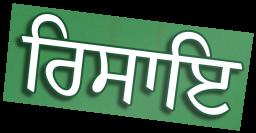
ਰਿਸਾਇ